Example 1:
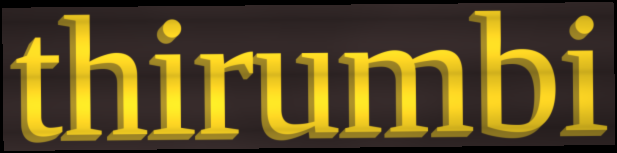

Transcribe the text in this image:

thirumbi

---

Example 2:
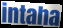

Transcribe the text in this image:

intaha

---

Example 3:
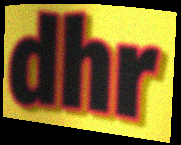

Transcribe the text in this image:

dhr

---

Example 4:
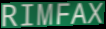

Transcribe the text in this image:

RIMFAX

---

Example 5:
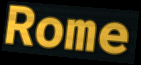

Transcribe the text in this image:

Rome